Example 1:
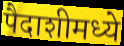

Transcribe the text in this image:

पैदाशीमध्ये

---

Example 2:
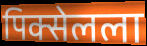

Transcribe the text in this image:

पिक्सेलला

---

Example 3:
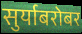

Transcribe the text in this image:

सुर्याबरोबर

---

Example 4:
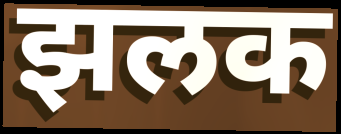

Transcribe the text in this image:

झलक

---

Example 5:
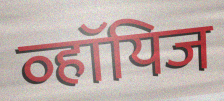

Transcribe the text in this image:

व्हॉयिज